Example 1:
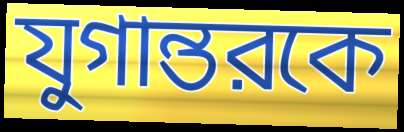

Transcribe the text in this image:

যুগান্তরকে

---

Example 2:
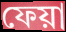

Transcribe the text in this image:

ফেয়া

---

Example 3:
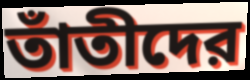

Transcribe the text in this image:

তাঁতীদের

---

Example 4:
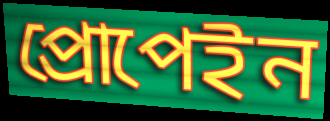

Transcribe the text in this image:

প্রোপেইন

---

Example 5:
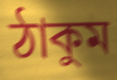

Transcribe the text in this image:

ঠাকুম